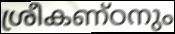
ശ്രീകണ്ഠനും